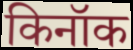
किनॉक